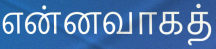
என்னவாகத்